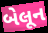
બેલૂન